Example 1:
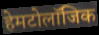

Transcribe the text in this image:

हेमटोलॉजिक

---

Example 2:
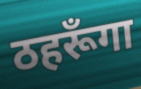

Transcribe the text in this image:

ठहरूँगा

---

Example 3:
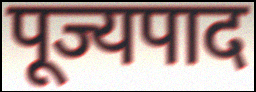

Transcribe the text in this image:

पूज्यपाद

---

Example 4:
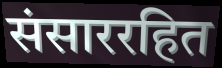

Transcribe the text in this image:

संसाररहित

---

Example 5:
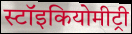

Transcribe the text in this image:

स्टॉइकियोमीट्री